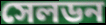
সেলডন